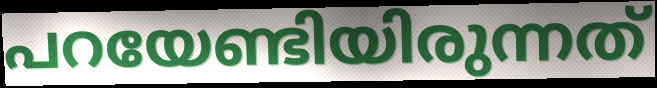
പറയേണ്ടിയിരുന്നത്